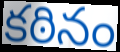
కఠినం